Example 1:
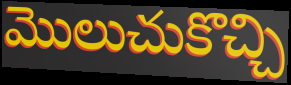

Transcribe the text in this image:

మొలుచుకొచ్చి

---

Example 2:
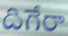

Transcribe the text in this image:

దిగేరా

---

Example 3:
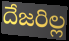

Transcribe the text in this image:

దేజరిల్ల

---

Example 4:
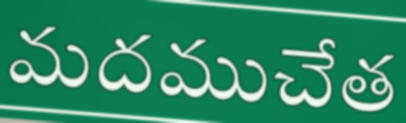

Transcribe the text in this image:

మదముచేత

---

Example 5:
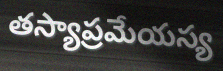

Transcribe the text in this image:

తస్యాప్రమేయస్య